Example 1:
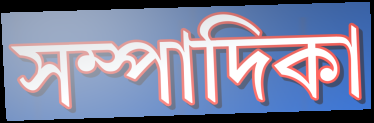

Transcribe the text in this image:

সম্পাদিকা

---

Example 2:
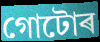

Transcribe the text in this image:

গোটোৰ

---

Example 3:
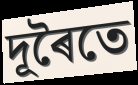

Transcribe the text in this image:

দূৰৈতে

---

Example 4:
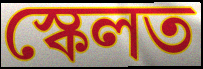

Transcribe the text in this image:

স্কেলত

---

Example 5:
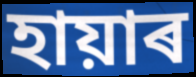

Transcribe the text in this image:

হায়াৰ